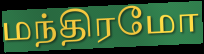
மந்திரமோ